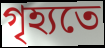
গৃহ্যতে